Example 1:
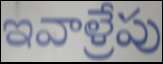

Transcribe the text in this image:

ఇవాళ్రేపు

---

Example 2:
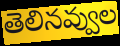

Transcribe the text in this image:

తెలినవ్వుల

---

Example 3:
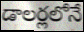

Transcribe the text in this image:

డాలర్లలోనే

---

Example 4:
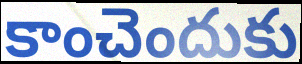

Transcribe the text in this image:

కాంచెందుకు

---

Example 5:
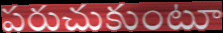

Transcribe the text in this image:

పరుచుకుంటూ